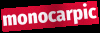
monocarpic